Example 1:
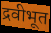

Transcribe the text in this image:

द्रवीभूत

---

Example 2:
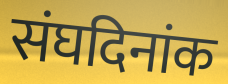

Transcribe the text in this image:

संघदिनांक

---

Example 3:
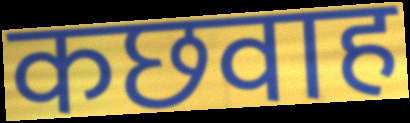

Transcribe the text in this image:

कछवाह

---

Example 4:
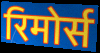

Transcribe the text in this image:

रिमोर्स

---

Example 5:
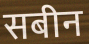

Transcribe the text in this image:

सबीन